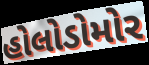
હોલોડોમોર